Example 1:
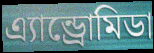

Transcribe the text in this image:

এ্যান্ড্রোমিডা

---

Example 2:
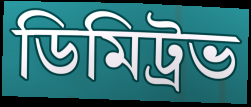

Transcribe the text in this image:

ডিমিট্রভ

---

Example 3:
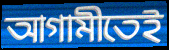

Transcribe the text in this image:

আগামীতেই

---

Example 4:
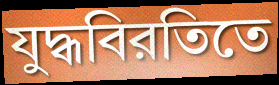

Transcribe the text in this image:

যুদ্ধবিরতিতে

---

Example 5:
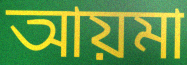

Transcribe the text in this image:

আয়মা